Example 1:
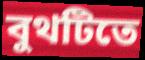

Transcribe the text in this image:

বুথটিতে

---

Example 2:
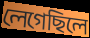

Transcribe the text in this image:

লেগেছিলে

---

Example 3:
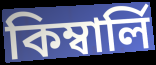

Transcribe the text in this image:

কিম্বার্লি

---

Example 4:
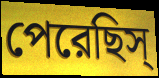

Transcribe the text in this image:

পেরেছিস্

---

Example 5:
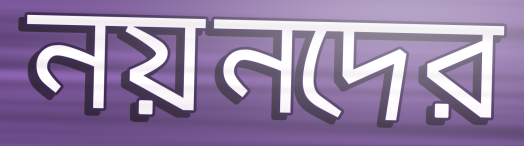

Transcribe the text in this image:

নয়নদের